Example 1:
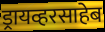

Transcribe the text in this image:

ड्रायव्हरसाहेब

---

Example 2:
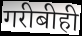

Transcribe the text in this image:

गरीबीही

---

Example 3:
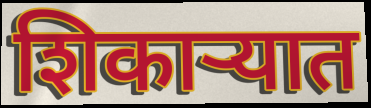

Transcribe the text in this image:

शिकाऱ्यात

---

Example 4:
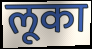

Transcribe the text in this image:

लूका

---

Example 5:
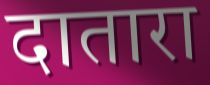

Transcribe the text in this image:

दातारा